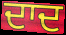
ਦਾਦ